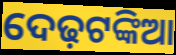
ଦେଢ଼ଟଙ୍କିଆ